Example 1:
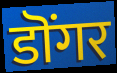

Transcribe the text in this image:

डॊंगर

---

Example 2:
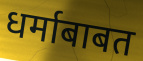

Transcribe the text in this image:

धर्माबाबत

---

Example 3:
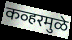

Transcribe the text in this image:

कव्हरमुळे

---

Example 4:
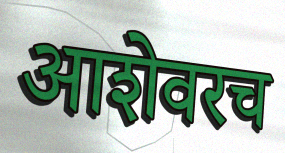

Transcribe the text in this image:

आशेवरच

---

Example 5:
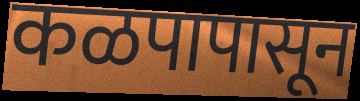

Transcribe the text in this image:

कळपापासून